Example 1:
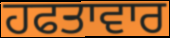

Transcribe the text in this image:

ਹਫਤਾਵਾਰ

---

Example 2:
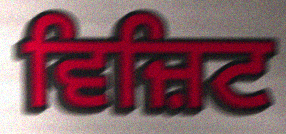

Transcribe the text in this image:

ਵਿਜ਼ਿਟ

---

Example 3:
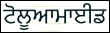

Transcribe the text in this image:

ਟੋਲੂਆਮਾਈਡ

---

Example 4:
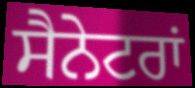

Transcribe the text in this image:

ਸੈਨੇਟਰਾਂ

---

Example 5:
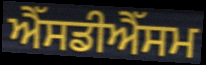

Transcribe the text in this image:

ਐੱਸਡੀਐੱਸਮ